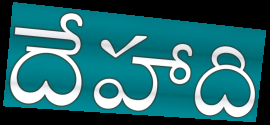
దేహాది